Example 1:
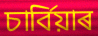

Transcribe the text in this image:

চাৰ্বিয়াৰ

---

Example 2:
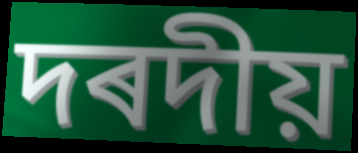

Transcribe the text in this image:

দৰদীয়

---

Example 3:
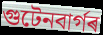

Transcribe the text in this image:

গুটেনবাৰ্গৰ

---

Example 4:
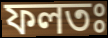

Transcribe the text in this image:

ফলতঃ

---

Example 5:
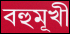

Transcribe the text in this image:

বহুমূখী